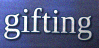
gifting